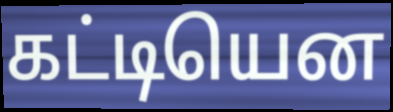
கட்டியென